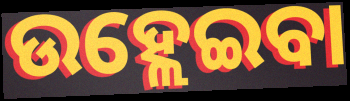
ଉହ୍ଲେଇବା